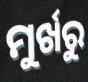
ମୁର୍ଖରୁ